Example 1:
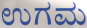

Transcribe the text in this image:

ಉಗಮ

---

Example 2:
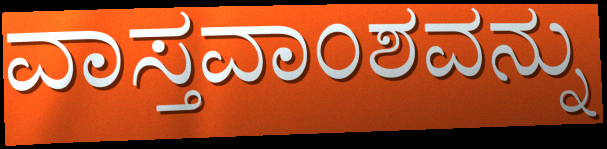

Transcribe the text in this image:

ವಾಸ್ತವಾಂಶವನ್ನು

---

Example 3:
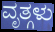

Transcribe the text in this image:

ವೃತ್ಗಳು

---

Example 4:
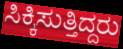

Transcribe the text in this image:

ಸಿಕ್ಕಿಸುತ್ತಿದ್ದರು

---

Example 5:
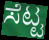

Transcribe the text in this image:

ಸೆಟ್ಟ